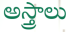
అస్త్రాలు